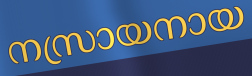
നസ്രായനായ